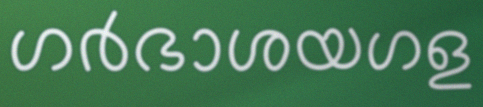
ഗർഭാശയഗള